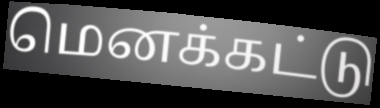
மெனக்கட்டு